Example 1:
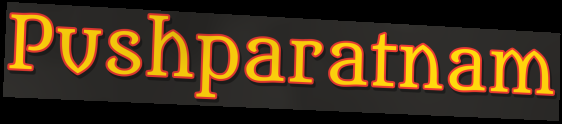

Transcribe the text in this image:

Pushparatnam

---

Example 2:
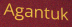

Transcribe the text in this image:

Agantuk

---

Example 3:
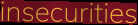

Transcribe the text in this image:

insecurities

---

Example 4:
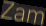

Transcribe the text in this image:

Zam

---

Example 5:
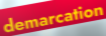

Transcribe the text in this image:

demarcation